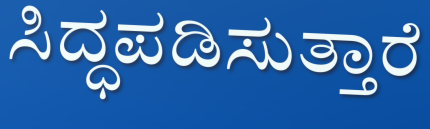
ಸಿದ್ಧಪಡಿಸುತ್ತಾರೆ